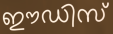
ഈഡിസ്